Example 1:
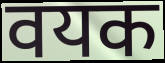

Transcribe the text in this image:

वयक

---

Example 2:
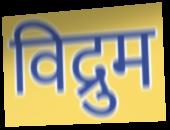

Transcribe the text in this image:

विद्रुम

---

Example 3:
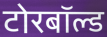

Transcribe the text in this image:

टोरबॉल्ड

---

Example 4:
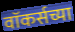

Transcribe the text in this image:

वॉकर्सच्या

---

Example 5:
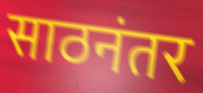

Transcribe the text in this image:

साठनंतर